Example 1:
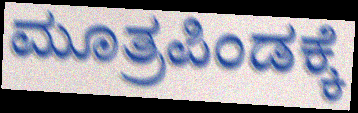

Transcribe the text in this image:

ಮೂತ್ರಪಿಂಡಕ್ಕೆ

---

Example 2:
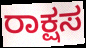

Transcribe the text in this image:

ರಾಕ್ಷಸ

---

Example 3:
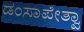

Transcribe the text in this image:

ಡಂಸಾಪೇತ್ವಾ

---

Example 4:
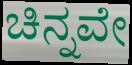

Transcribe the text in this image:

ಚಿನ್ನವೇ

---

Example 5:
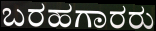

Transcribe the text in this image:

ಬರಹಗಾರರು